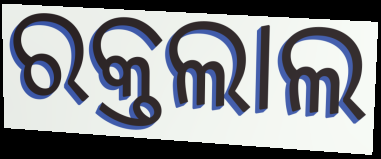
ରକ୍ତଲାଲ